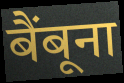
बैंबूना